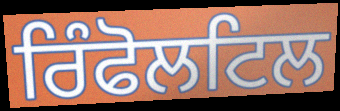
ਰਿੰਫੋਲਟਿਲ